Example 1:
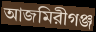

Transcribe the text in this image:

আজমিরীগঞ্জ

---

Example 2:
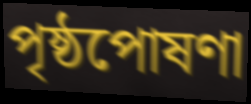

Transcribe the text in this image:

পৃষ্ঠপোষণা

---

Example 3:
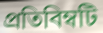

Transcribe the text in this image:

প্রতিবিম্বটি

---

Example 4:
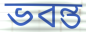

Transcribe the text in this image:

ভবন্ত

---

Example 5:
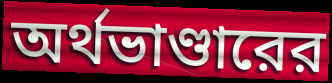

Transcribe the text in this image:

অর্থভাণ্ডারের